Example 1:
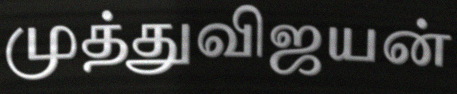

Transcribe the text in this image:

முத்துவிஜயன்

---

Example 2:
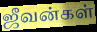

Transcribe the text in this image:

ஜீவன்கள்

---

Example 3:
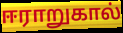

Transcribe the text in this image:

ஈராறுகால்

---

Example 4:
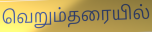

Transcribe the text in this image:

வெறும்தரையில்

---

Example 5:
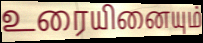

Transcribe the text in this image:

உரையினையும்